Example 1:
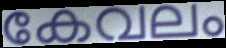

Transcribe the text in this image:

കേവലം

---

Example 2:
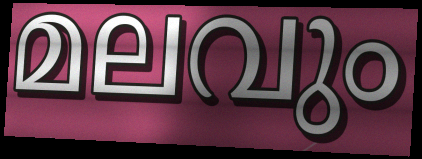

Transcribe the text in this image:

മലവും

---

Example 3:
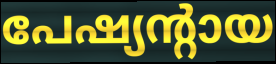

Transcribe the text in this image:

പേഷ്യന്റായ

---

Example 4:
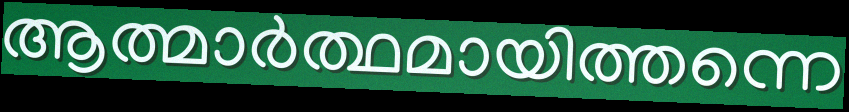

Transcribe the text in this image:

ആത്മാർത്ഥമായിത്തന്നെ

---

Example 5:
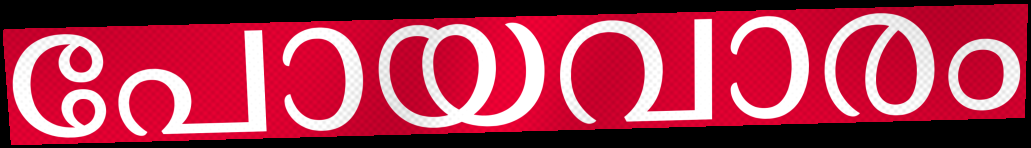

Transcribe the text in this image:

പോയവാരം